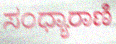
ಸಂಧ್ಯಾರಾಣಿ